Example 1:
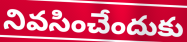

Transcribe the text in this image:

నివసించేందుకు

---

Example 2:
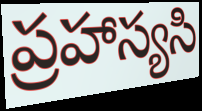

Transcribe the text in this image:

ప్రహాస్యసి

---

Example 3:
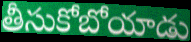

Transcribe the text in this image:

తీసుకోబోయాడు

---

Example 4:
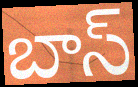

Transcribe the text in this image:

బాస్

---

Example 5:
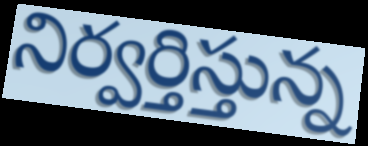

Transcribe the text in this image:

నిర్వర్తిస్తున్న